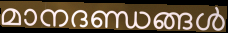
മാനദണ്ഡങ്ങൾ